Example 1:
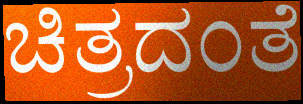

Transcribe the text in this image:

ಚಿತ್ರದಂತೆ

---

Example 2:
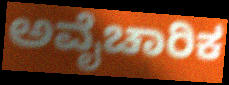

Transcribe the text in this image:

ಅವೈಚಾರಿಕ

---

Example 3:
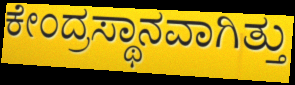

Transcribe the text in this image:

ಕೇಂದ್ರಸ್ಥಾನವಾಗಿತ್ತು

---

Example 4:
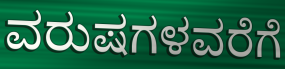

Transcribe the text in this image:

ವರುಷಗಳವರೆಗೆ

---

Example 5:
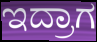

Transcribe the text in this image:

ಇದ್ರಾಗ